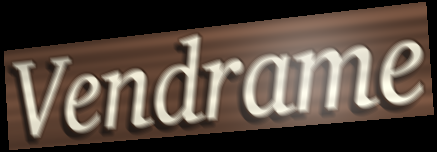
Vendrame